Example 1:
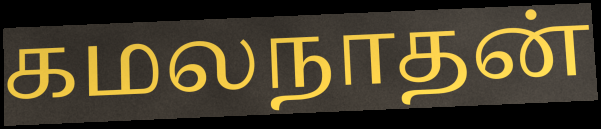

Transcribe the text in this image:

கமலநாதன்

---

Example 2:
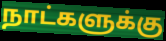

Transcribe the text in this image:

நாட்களுக்கு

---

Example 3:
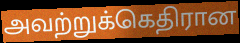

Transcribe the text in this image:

அவற்றுக்கெதிரான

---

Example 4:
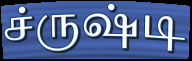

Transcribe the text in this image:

ச்ருஷ்டி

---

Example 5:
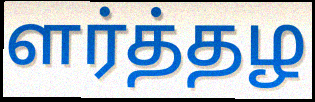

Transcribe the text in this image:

ளர்த்தழ